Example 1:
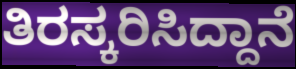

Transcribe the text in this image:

ತಿರಸ್ಕರಿಸಿದ್ದಾನೆ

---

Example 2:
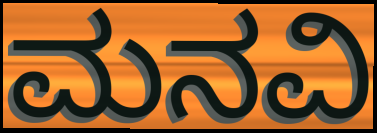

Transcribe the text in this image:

ಮನವಿ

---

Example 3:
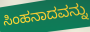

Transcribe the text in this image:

ಸಿಂಹನಾದವನ್ನು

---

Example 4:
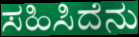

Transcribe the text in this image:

ಸಹಿಸಿದೆನು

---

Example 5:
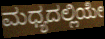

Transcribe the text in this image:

ಮಧ್ಯದಲ್ಲಿಯೇ